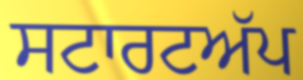
ਸਟਾਰਟਅੱਪ